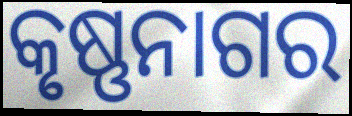
କୃଷ୍ଣନାଗର